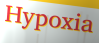
Hypoxia